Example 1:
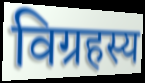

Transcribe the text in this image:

विग्रहस्य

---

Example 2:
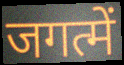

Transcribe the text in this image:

जगत्में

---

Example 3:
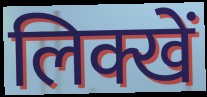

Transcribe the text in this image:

लिक्खें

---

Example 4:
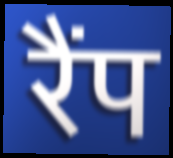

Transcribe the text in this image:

रैंप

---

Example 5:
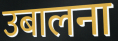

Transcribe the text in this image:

उबालना